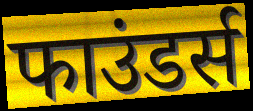
फाउंडर्स